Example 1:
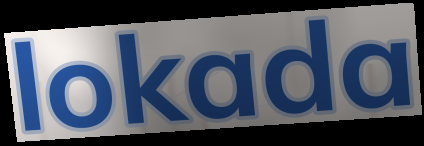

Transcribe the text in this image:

lokada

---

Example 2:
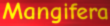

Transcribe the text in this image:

Mangifera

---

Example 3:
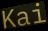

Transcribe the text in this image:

Kai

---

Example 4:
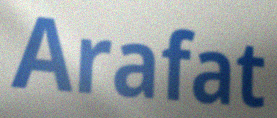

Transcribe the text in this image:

Arafat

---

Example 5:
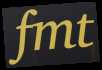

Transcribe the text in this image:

fmt